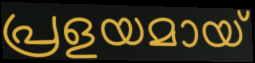
പ്രളയമായ്